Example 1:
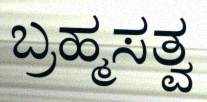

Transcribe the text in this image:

ಬ್ರಹ್ಮಸತ್ವ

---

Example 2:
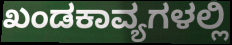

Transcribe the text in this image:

ಖಂಡಕಾವ್ಯಗಳಲ್ಲಿ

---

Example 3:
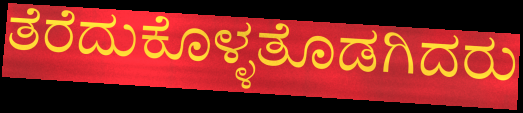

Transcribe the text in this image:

ತೆರೆದುಕೊಳ್ಳತೊಡಗಿದರು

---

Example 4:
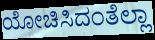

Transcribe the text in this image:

ಯೋಚಿಸಿದಂತೆಲ್ಲಾ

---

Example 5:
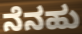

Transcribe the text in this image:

ನೆನಹು